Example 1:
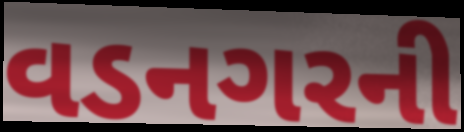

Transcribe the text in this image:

વડનગરની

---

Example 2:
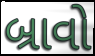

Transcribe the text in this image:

બ્રાવો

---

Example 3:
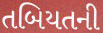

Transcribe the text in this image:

તબિયતની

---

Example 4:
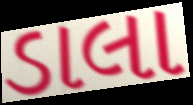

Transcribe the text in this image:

ડાલા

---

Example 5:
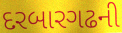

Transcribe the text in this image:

દરબારગઢની